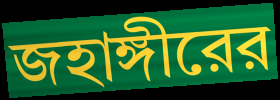
জহাঙ্গীরের